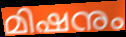
മിഷനും